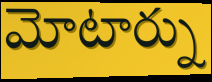
మోటార్ను